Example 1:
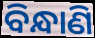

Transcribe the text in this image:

ବିନ୍ଧାଣି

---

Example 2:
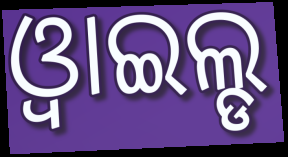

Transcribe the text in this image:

ଓ୍ବାଇଲ୍ଡ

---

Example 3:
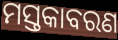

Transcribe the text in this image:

ମସ୍ତକାବରଣ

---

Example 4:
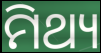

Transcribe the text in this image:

ମିଥ୍ୟ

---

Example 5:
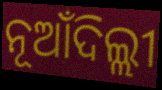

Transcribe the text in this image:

ନୂଆଁଦିଲ୍ଲୀ